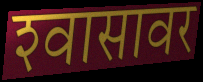
श्वासावर